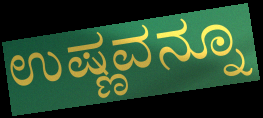
ಉಷ್ಣವನ್ನೂ